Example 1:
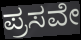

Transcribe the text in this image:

ಪ್ರಸವೇ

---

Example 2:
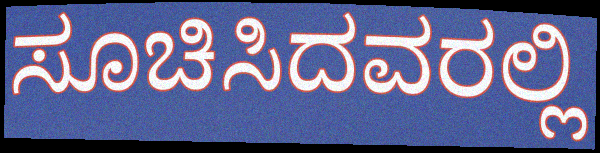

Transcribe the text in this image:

ಸೂಚಿಸಿದವರಲ್ಲಿ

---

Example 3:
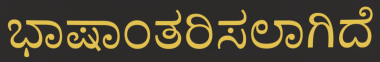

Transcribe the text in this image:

ಭಾಷಾಂತರಿಸಲಾಗಿದೆ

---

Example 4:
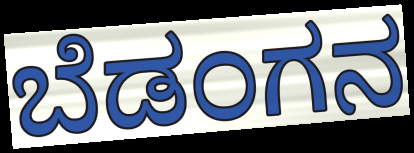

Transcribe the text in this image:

ಬೆಡಂಗನ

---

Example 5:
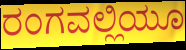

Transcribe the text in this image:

ರಂಗವಲ್ಲಿಯೂ